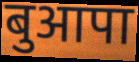
बुआपा